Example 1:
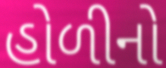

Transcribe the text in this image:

હોળીનો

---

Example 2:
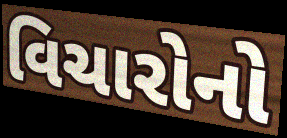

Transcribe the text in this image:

વિચારોનો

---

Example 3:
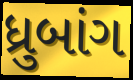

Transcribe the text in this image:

ધ્રુબાંગ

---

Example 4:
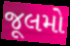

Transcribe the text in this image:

જૂલમો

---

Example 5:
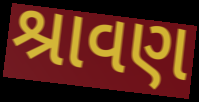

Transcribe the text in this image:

શ્રાવણ